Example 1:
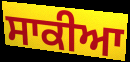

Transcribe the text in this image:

ਸਾਕੀਆ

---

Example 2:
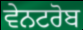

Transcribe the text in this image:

ਵੇਨਟਰੋਬ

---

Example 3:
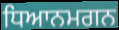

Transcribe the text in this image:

ਧਿਆਨਮਗਨ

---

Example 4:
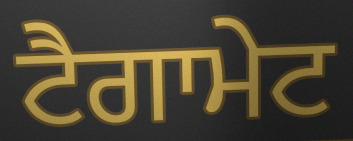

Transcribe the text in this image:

ਟੈਗਾਮੇਟ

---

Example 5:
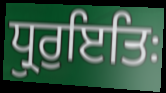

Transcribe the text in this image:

ਧ੍ਰੁਰੁਇਤਿਃ